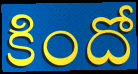
కిందో